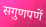
सगुणपणें